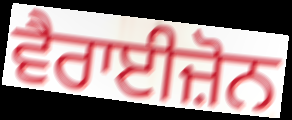
ਵੈਰਾਈਜ਼ੋਨ